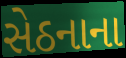
સેઠનાના